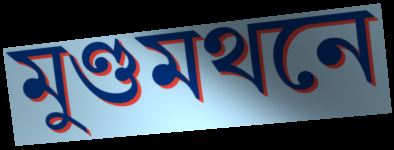
মুণ্ডমথনে